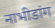
नाभीडांग